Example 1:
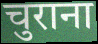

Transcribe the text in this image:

चुराना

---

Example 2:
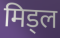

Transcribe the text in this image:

मिड्ल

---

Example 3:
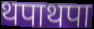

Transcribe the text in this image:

थपाथपा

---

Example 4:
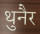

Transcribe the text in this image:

थुनैर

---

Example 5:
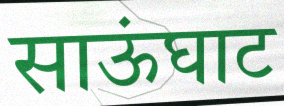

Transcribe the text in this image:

साऊंघाट